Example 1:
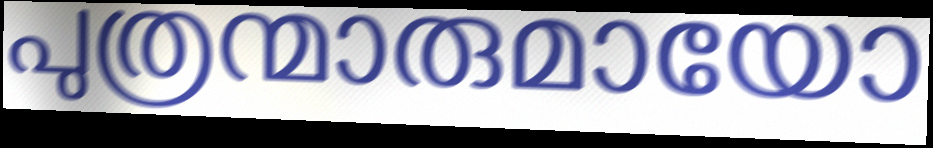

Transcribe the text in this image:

പുത്രന്മാരുമായോ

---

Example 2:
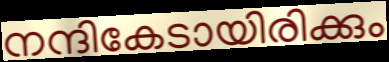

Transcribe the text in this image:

നന്ദികേടായിരിക്കും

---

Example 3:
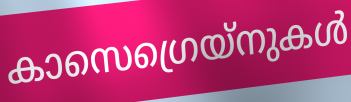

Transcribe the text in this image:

കാസെഗ്രെയ്നുകൾ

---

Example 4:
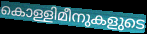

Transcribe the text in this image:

കൊള്ളിമീനുകളുടെ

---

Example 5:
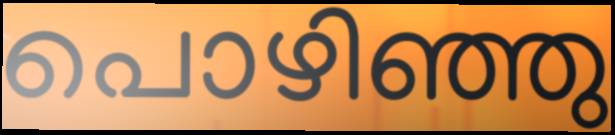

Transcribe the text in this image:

പൊഴിഞ്ഞു